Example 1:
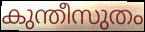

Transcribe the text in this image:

കുന്തീസുതം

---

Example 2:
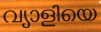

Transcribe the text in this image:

വ്യാളിയെ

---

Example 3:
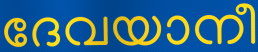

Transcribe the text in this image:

ദേവയാനീ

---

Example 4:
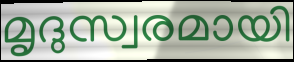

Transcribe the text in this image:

മൃദുസ്വരമായി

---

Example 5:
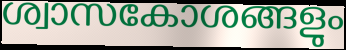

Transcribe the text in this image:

ശ്വാസകോശങ്ങളും